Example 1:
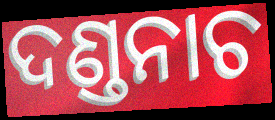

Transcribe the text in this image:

ଦଣ୍ଡନାଚ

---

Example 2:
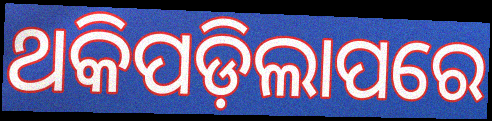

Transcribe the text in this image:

ଥକିପଡ଼ିଲାପରେ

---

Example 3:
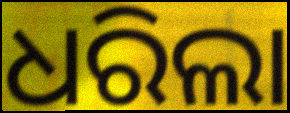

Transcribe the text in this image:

ଧରିଲା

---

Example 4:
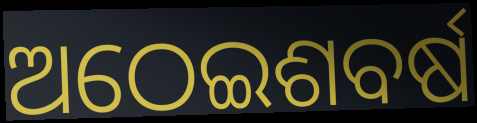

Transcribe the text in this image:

ଅଠେଇଶବର୍ଷ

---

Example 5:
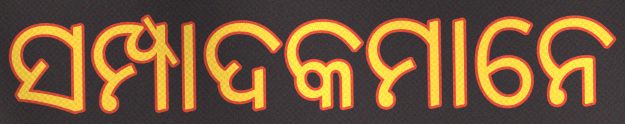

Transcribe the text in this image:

ସମ୍ପାଦକମାନେ